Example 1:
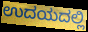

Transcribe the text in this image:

ಉದಯದಲ್ಲಿ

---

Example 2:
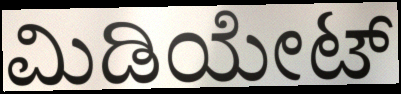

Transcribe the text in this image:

ಮಿಡಿಯೇಟ್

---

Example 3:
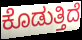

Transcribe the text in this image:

ಕೊಡುತ್ತಿದೆ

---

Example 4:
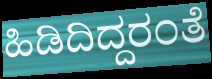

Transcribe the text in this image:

ಹಿಡಿದಿದ್ದರಂತೆ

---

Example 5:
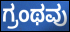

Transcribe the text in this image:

ಗ್ರಂಥವು